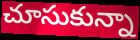
చూసుకున్నా